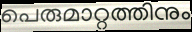
പെരുമാറ്റത്തിനും